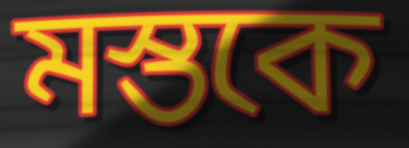
মস্তকে